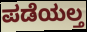
ಪಡೆಯಲ್ತ